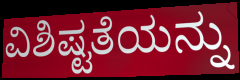
ವಿಶಿಷ್ಟತೆಯನ್ನು